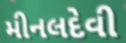
મીનલદેવી